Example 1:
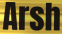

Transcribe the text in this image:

Arsh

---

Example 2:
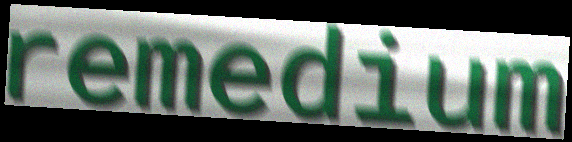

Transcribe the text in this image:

remedium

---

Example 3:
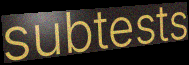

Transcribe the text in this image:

subtests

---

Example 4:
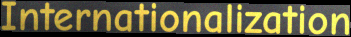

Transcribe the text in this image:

Internationalization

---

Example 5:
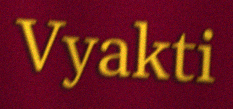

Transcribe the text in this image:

Vyakti